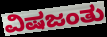
ವಿಷಜಂತು